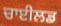
ਚਾਈਲਡ